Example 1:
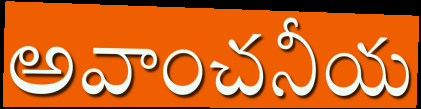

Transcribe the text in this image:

అవాంచనీయ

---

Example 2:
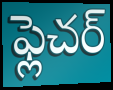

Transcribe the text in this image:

ఫ్లెచర్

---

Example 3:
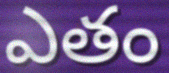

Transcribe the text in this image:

ఎతం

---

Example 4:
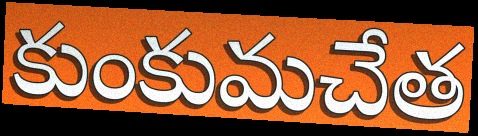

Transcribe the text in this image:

కుంకుమచేత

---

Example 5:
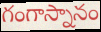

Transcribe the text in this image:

గంగాస్నానం